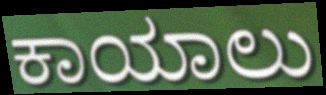
ಕಾಯಾಲು